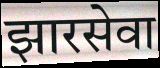
झारसेवा